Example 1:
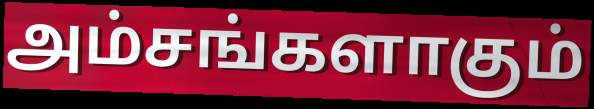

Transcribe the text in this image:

அம்சங்களாகும்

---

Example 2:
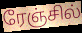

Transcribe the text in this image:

ரேஞ்சில்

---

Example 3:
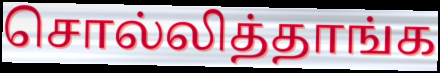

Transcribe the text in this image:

சொல்லித்தாங்க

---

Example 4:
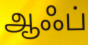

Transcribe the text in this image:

ஆஃப்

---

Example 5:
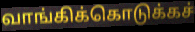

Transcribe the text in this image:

வாங்கிக்கொடுக்கச்